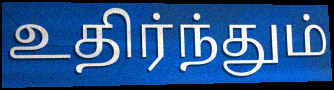
உதிர்ந்தும்